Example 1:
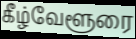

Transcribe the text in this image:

கீழ்வேளூரை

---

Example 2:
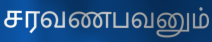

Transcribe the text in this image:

சரவணபவனும்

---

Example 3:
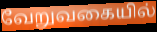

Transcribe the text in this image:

வேறுவகையில்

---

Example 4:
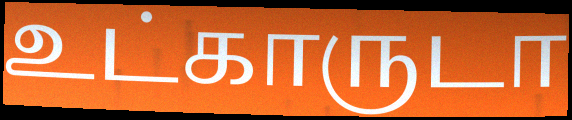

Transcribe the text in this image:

உட்காருடா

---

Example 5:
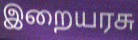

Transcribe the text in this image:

இறையரசு